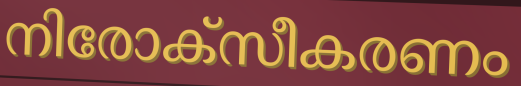
നിരോക്സീകരണം